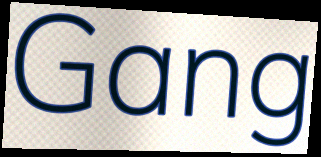
Gang